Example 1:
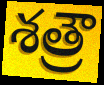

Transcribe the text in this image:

శత్రౌ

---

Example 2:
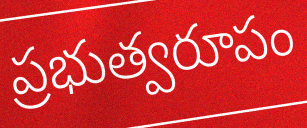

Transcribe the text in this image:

ప్రభుత్వరూపం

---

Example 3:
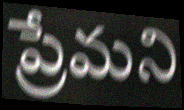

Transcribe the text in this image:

ప్రేమని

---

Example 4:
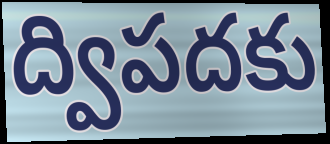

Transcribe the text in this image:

ద్విపదకు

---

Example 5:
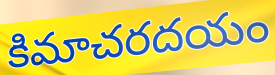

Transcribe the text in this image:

కిమాచరదయం